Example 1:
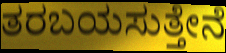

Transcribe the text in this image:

ತರಬಯಸುತ್ತೇನೆ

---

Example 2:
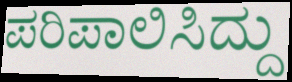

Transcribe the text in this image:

ಪರಿಪಾಲಿಸಿದ್ದು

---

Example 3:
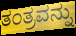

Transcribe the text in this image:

ತಂತ್ರವನ್ನು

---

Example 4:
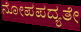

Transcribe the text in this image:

ನೋಪಪದ್ಯತೇ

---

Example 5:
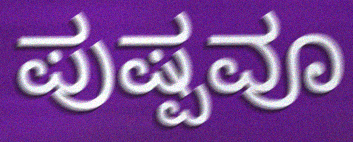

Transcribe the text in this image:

ಪುಷ್ಪವೂ